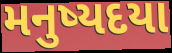
મનુષ્યદયા